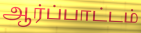
ஆர்ப்பாட்டம்